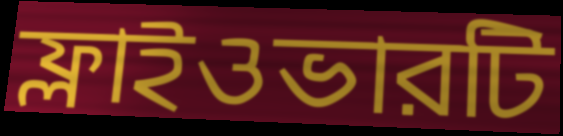
ফ্লাইওভারটি